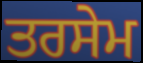
ਤਰਸੇਮ